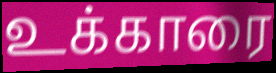
உக்காரை